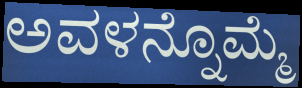
ಅವಳನ್ನೊಮ್ಮೆ